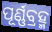
ପୂର୍ଣ୍ଣବ୍ରହ୍ମ